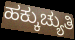
ಹಕ್ಕುಚ್ಯುತಿ